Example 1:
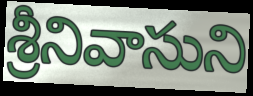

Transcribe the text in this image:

శ్రీనివాసుని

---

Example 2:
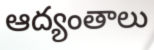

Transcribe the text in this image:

ఆద్యంతాలు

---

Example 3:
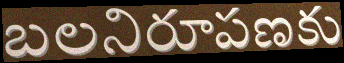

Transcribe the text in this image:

బలనిరూపణకు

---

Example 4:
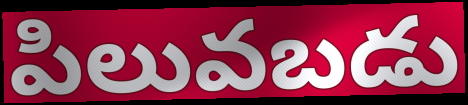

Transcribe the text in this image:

పిలువబడు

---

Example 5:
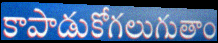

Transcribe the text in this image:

కాపాడుకోగలుగుతాం